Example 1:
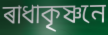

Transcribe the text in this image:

ৰাধাকৃষ্ণনে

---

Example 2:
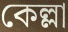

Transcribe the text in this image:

কেল্লা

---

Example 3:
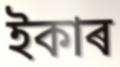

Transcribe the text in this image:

ইকাৰ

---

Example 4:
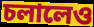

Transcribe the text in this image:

চলালেও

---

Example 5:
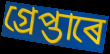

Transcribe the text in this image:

গ্ৰেপ্তাৰে